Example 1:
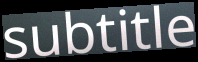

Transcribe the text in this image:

subtitle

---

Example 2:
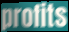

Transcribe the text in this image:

profits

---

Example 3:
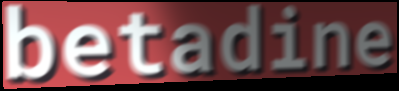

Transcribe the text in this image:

betadine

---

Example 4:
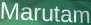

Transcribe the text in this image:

Marutam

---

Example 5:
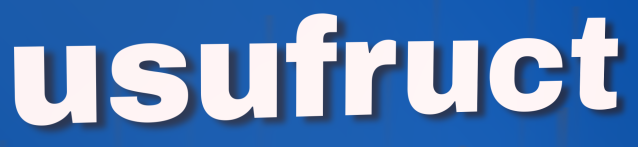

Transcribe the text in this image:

usufruct